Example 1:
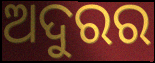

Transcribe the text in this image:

ଅଦୁରର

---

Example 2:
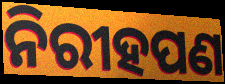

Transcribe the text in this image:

ନିରୀହପଣ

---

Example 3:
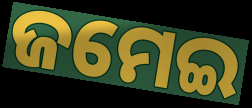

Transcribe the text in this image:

ଜମେଇ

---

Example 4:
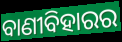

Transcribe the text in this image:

ବାଣୀବିହାରର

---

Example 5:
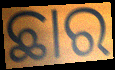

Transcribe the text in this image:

ଛାର